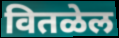
वितळेल